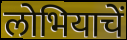
लोभियाचें